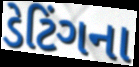
ડેટિંગના